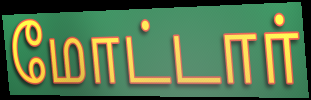
மோட்டார்